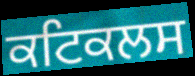
ਕਟਿਕਲਸ